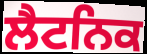
ਲੈਟਨਿਕ